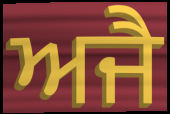
ਅਜੈ